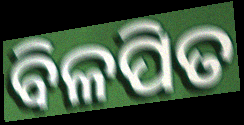
ବିଳପିତ